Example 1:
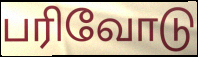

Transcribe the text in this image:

பரிவோடு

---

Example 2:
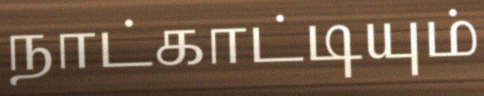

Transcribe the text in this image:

நாட்காட்டியும்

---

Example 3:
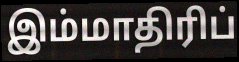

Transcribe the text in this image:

இம்மாதிரிப்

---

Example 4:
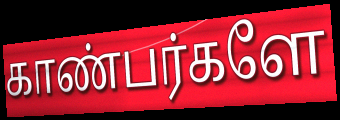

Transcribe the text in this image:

காண்பர்களே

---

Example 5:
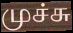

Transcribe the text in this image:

முச்சு